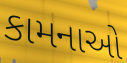
કામનાઓ